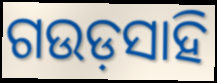
ଗଉଡ଼ସାହି